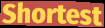
Shortest